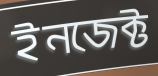
ইনজেক্ট